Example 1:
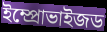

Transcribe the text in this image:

ইম্প্রোভাইজড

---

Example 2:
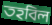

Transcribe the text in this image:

তহবিল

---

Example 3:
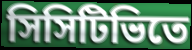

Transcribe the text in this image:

সিসিটিভিতে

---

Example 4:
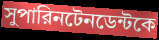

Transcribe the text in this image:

সুপারিনটেনডেন্টকে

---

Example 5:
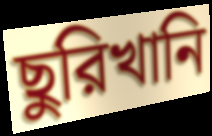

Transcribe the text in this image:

ছুরিখানি